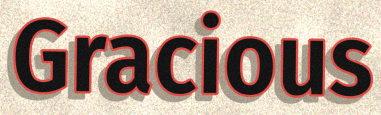
Gracious